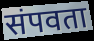
संपवता